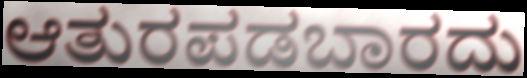
ಆತುರಪಡಬಾರದು